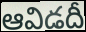
ఆవిడదీ